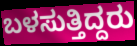
ಬಳಸುತ್ತಿದ್ದರು